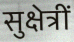
सुक्षेत्रीं